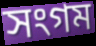
সংগম